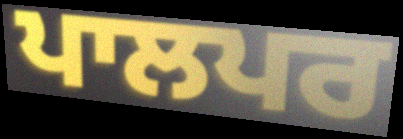
ਪਾਲਪਰ